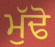
ਮੁੱਢੋ